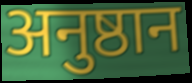
अनुष्ठान